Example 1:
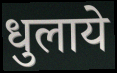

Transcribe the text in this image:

धुलाये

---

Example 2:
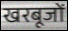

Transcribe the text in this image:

खरबूजों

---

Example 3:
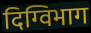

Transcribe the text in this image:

दिग्विभाग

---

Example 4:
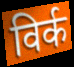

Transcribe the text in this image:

विर्क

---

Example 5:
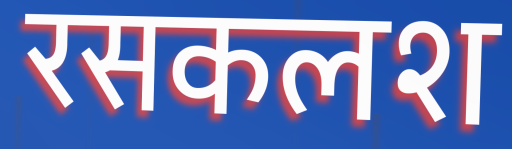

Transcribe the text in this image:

रसकलश